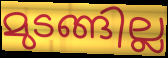
മുടങ്ങില്ല